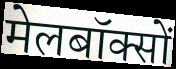
मेलबॉक्सों